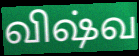
விஷ்வ